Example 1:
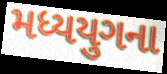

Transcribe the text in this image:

મધ્યયુગના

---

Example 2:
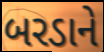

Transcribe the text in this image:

બરડાને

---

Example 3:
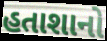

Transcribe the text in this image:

હતાશાનો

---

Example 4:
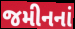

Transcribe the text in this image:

જમીનનાં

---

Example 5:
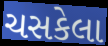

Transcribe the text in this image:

ચસકેલા